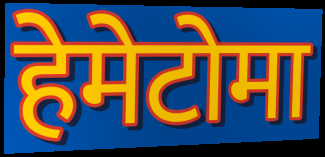
हेमेटोमा